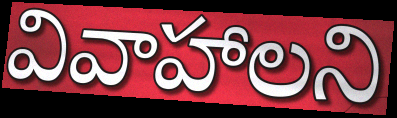
వివాహాలని